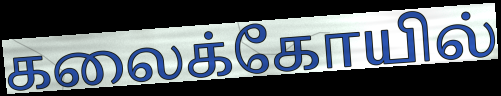
கலைக்கோயில்